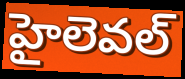
హైలెవల్